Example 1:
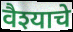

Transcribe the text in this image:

वैश्याचे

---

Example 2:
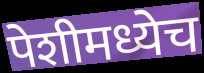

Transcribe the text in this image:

पेशीमध्येच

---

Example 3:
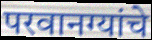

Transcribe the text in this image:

परवानग्यांचे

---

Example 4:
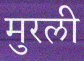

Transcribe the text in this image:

मुरली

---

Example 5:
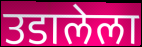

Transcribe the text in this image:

उडालेला